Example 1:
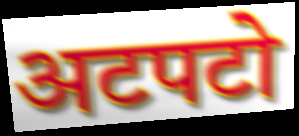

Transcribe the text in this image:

अटपटो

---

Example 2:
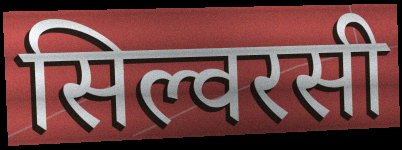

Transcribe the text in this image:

सिल्वरसी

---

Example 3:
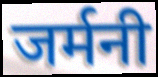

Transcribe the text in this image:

जर्मनी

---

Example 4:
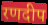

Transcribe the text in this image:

रणदीप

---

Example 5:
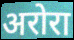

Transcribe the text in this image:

अरोरा